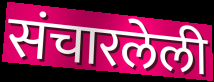
संचारलेली